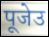
पूजेउ